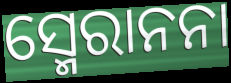
ସ୍ମେରାନନା